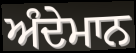
ਅੰਦੇਮਾਨ